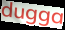
dugga